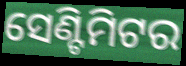
ସେଣ୍ଟିମିଟର